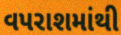
વપરાશમાંથી